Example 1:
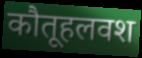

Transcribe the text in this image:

कौतूहलवश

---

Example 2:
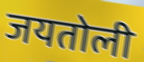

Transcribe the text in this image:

जयतोली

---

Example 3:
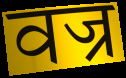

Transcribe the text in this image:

वज्र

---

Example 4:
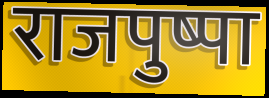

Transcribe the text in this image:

राजपुष्पा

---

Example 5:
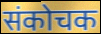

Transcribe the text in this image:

संकोचक